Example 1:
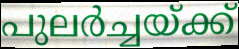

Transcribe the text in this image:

പുലർച്ചയ്ക്ക്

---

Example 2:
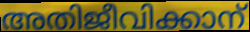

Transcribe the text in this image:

അതിജീവിക്കാന്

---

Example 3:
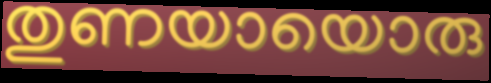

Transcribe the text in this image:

തുണയായൊരു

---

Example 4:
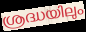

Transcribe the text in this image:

ശ്രദ്ധയിലും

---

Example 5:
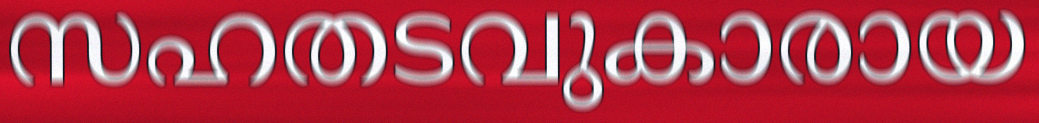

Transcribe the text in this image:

സഹതടവുകാരായ